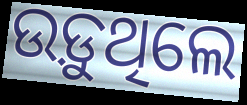
ଉଡ଼ୁଥିଲେ